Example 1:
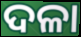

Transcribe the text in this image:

ଦଳା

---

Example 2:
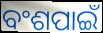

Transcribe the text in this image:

ବଂଶପାଇଁ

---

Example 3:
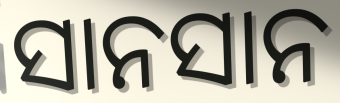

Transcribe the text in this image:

ସାନସାନ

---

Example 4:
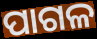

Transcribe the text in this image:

ପାଗଳ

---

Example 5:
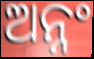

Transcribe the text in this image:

ଅନ୍ନଂ